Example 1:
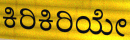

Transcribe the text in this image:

ಕಿರಿಕಿರಿಯೇ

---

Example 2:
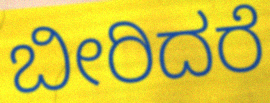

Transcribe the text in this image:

ಬೀರಿದರೆ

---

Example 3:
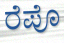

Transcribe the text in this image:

ರೆಪೊ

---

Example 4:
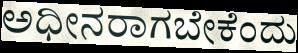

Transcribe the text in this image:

ಅಧೀನರಾಗಬೇಕೆಂದು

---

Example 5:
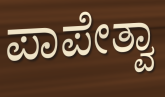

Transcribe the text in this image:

ಪಾಪೇತ್ವಾ